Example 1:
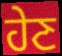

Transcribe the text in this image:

ਹੇਣ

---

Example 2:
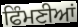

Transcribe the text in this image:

ਫਿੰਮਣੀਆਂ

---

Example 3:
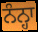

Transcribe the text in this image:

ਨੰਨ੍ਹਾ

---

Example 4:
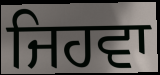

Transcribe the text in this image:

ਜਿਹਵਾ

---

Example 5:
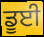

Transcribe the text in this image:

ਡੂਈ